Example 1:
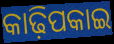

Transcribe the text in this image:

କାଢ଼ିପକାଇ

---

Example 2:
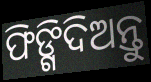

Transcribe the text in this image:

ଫିଙ୍ଗିଦିଅନ୍ତୁ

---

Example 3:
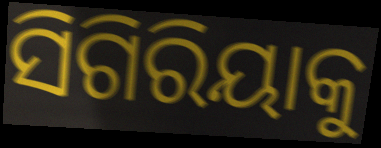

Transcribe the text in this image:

ସିଗିରିୟାକୁ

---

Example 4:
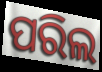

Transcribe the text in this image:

ପରିଲ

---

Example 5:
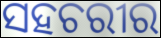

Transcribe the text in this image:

ସହଚରୀର